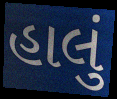
હાલું